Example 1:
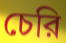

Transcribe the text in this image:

চেরি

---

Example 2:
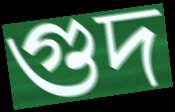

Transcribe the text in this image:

গুদ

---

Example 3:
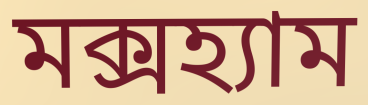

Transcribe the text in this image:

মক্সহ্যাম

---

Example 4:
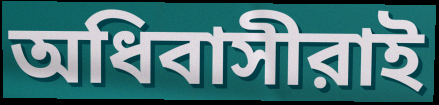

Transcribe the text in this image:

অধিবাসীরাই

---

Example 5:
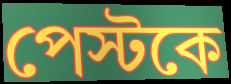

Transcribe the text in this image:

পেস্টকে